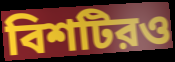
বিশটিরও